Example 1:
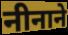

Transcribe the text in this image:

नीनाने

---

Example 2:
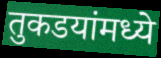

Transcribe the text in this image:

तुकडयांमध्ये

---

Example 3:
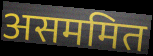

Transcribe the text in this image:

असममित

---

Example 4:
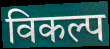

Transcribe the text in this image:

विकल्प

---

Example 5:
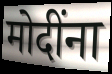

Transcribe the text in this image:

मोदींना